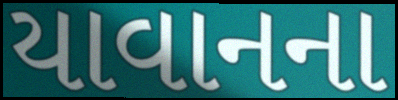
યાવાનના